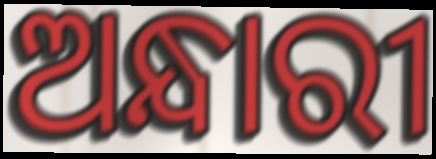
ଅନ୍ଧାରୀ